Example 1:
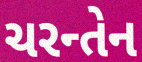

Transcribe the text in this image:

ચરન્તેન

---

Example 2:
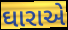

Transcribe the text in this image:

ઘારાએ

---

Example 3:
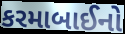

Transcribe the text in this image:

કરમાબાઈનો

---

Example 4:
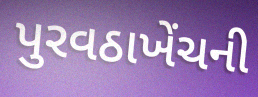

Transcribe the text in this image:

પુરવઠાખેંચની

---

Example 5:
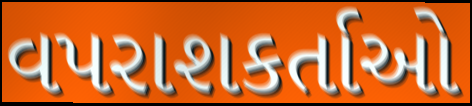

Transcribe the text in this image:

વપરાશકર્તાઓ